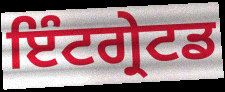
ਇੰਟਗ੍ਰੇਟਡ